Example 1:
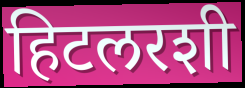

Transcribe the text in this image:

हिटलरशी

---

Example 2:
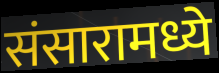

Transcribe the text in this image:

संसारामध्ये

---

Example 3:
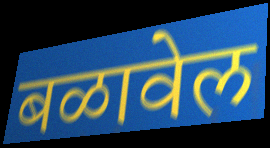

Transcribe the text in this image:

बळावेल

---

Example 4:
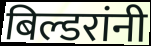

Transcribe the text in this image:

बिल्डरांनी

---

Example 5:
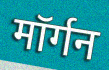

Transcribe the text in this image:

मॉर्गन